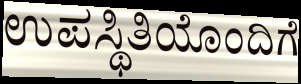
ಉಪಸ್ಥಿತಿಯೊಂದಿಗೆ